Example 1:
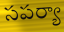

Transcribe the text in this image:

సపర్యా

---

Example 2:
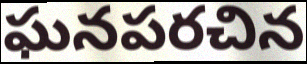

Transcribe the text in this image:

ఘనపరచిన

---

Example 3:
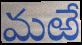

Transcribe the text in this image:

మఱే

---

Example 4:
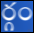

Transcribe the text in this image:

ర్గం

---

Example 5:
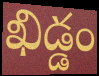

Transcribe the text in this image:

ఖిడ్డం